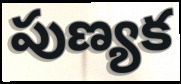
పుణ్యక